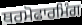
ਥਰਮੋਫਾਰਮਿੰਗ